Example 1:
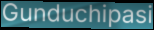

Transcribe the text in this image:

Gunduchipasi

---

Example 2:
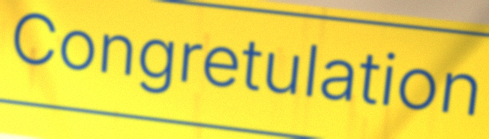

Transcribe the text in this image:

Congretulation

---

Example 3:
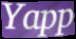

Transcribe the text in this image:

Yapp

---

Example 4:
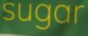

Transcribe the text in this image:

sugar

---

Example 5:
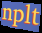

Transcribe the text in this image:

nplt